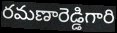
రమణారెడ్డిగారి